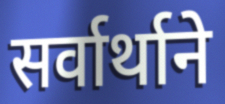
सर्वार्थाने